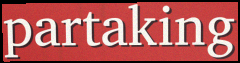
partaking